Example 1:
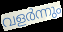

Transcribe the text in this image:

വളർന്നും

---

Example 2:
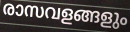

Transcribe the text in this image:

രാസവളങ്ങളും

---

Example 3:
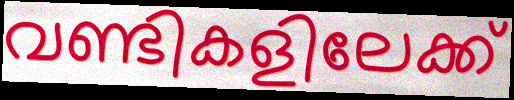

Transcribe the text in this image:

വണ്ടികളിലേക്ക്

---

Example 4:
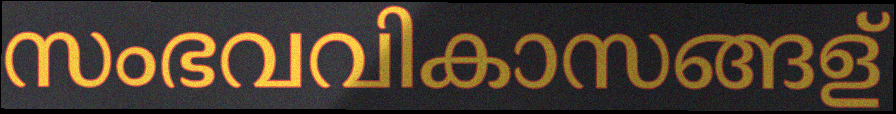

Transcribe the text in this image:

സംഭവവികാസങ്ങള്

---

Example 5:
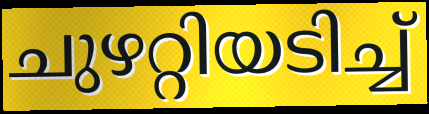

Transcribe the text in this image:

ചുഴറ്റിയടിച്ച്